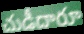
చుడీదారూ